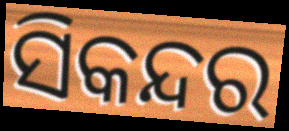
ସିକନ୍ଦର